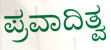
ಪ್ರವಾದಿತ್ವ